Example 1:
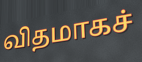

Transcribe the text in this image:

விதமாகச்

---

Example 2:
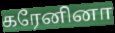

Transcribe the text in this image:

கரேனினா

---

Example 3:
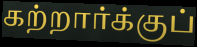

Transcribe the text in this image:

கற்றார்க்குப்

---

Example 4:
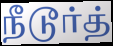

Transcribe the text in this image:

நீடூர்த்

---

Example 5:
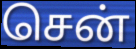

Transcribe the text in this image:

சென்